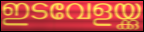
ഇടവേളയ്ക്കു